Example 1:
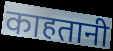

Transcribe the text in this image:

काहतानी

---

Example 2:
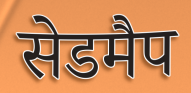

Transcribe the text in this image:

सेडमैप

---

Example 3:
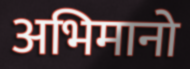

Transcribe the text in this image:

अभिमानो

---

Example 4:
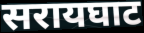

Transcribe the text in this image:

सरायघाट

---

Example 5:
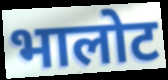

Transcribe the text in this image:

भालोट